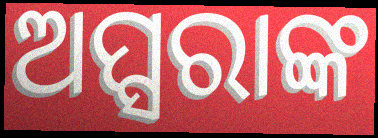
ଅପ୍ସରାଙ୍କ